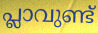
പ്ലാവുണ്ട്